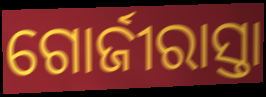
ଗୋର୍ଜୀରାସ୍ତା